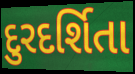
દુરદર્શિતા